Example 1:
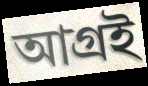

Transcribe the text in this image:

আগ্রই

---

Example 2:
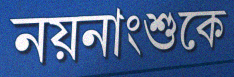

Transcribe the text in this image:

নয়নাংশুকে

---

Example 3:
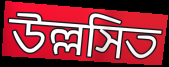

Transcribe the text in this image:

উল্লসিত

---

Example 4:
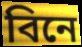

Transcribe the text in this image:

বিনে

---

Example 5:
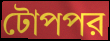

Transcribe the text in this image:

টোপপর